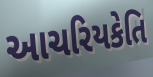
આચરિયકેતિ